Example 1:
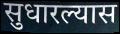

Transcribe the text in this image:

सुधारल्यास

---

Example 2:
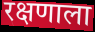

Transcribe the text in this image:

रक्षणाला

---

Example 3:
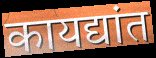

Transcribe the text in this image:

कायद्यांत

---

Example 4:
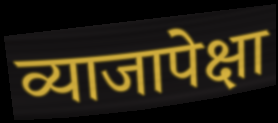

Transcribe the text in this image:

व्याजापेक्षा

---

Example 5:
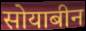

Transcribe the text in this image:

सोयाबीन